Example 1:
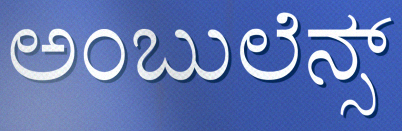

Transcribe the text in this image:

ಅಂಬುಲೆನ್ಸ್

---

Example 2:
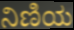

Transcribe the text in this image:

ನಿಣಿಯ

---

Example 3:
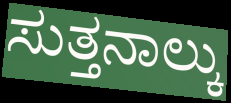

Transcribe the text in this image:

ಸುತ್ತನಾಲ್ಕು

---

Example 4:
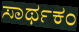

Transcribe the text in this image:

ಸಾರ್ಥಕಂ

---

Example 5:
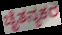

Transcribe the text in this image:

ಚೈತನ್ಯಕರ